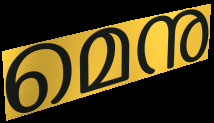
മെനു